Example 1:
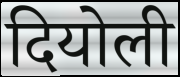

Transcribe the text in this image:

दियोली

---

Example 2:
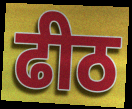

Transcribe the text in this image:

ढीठ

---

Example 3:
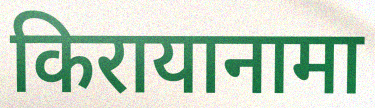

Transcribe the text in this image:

किरायानामा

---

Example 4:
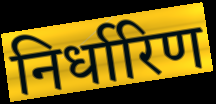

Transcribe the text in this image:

निर्धारिण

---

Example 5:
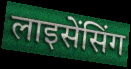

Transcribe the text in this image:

लाइसेंसिंग